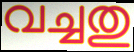
വച്ചതു